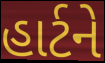
હાર્ટને